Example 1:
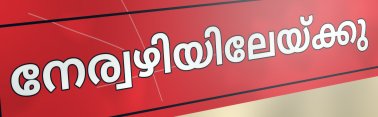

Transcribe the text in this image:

നേര്വഴിയിലേയ്ക്കു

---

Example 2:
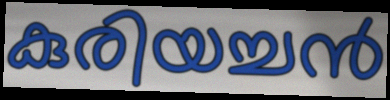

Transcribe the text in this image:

കുരിയച്ചൻ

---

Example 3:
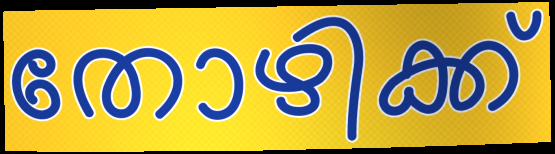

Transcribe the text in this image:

തോഴിക്ക്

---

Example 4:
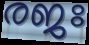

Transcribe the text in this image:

രജഃ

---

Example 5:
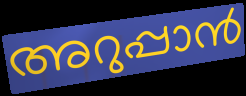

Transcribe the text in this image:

അറുപ്പാൻ